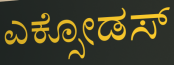
ಎಕ್ಸೋಡಸ್